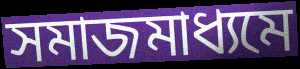
সমাজমাধ্যমে